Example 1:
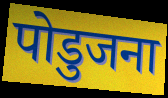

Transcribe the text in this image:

पोडुजना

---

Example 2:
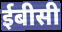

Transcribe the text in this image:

ईबीसी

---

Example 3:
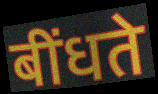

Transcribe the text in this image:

बींधते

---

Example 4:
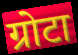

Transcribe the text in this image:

ग्रोटा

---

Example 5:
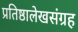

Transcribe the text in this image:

प्रतिष्ठालेखसंग्रह